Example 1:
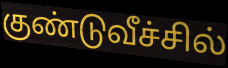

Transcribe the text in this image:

குண்டுவீச்சில்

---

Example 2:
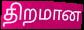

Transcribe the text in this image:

திறமான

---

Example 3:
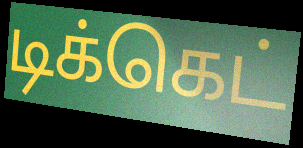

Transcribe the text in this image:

டிக்கெட்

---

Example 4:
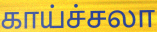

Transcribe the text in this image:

காய்ச்சலா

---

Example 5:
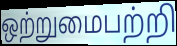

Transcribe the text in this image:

ஒற்றுமைபற்றி